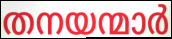
തനയന്മാർ